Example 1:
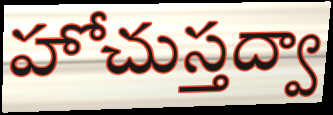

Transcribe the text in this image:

హోచుస్తద్వా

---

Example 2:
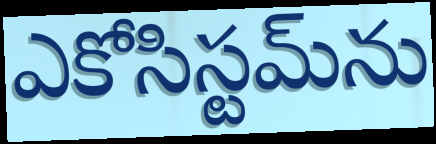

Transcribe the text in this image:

ఎకోసిస్టమ్‌ను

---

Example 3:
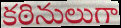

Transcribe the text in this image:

కఠినులుగా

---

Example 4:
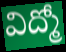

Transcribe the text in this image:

విద్మో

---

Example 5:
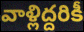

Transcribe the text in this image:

వాళ్లిద్దరికీ